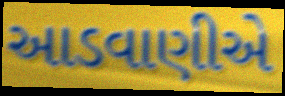
આડવાણીએ